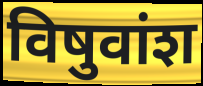
विषुवांश